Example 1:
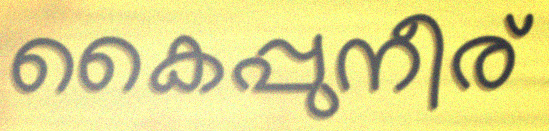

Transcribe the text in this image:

കൈപ്പുനീര്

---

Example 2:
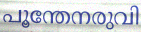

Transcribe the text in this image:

പൂന്തേനരുവി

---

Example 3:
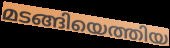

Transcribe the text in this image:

മടങ്ങിയെത്തിയ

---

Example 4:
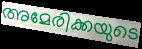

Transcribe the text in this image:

അമേരിക്കയുടെ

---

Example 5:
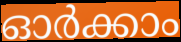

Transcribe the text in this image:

ഓർക്കാം